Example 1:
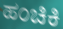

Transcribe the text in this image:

ಹಂಚಿಕಿ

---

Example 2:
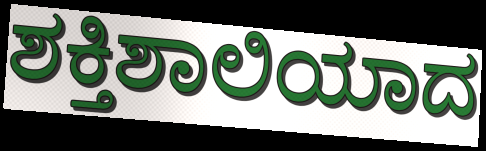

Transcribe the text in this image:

ಶಕ್ತಿಶಾಲಿಯಾದ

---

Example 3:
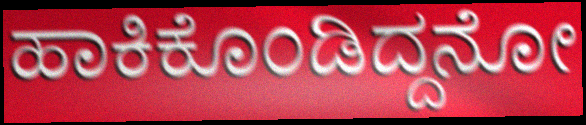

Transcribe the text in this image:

ಹಾಕಿಕೊಂಡಿದ್ದನೋ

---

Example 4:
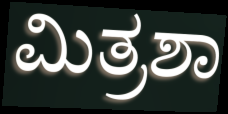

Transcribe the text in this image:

ಮಿತ್ರಶಾ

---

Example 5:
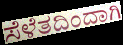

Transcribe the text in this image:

ಸೆಳೆತದಿಂದಾಗಿ